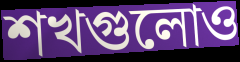
শখগুলোও